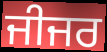
ਜੀਜਰ